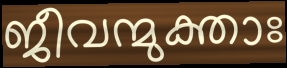
ജീവന്മുക്താഃ